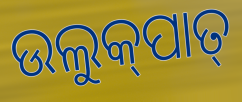
ଉଲୁକ୍‌ପାତ୍